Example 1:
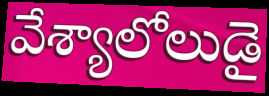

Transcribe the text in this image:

వేశ్యాలోలుడై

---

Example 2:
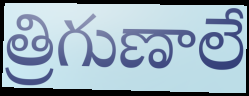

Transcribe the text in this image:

త్రిగుణాలే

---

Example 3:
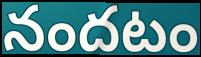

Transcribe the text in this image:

నందటం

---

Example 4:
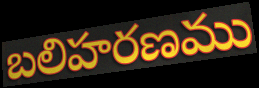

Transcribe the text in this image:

బలిహరణము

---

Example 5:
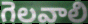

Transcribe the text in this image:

గెలవాలి